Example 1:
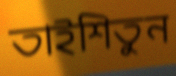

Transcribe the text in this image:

তাইশিতুন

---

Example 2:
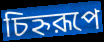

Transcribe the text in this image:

চিহ্নরূপে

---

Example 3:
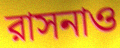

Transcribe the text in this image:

রাসনাও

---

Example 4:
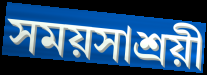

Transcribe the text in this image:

সময়সাশ্রয়ী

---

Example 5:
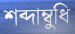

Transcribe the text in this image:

শব্দাম্বুধি